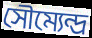
সৌম্যেন্দ্র